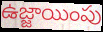
ఉజ్జాయింపు